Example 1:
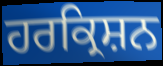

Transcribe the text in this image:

ਹਰਕ੍ਰਿਸ਼ਨ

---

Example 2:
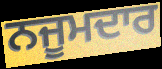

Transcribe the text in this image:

ਨਜੂਮਦਾਰ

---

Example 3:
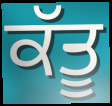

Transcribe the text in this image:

ਕੱਤੂ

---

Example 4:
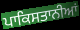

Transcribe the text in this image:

ਪਾਕਿਸਤਾਨੀਆਂ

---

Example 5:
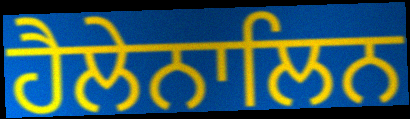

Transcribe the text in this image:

ਹੈਲੇਨਾਲਿਨ